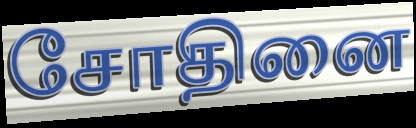
சோதினை